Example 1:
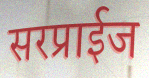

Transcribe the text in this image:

सरप्राईज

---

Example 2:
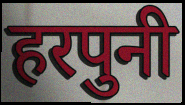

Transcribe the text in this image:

हरपुनी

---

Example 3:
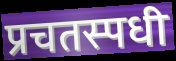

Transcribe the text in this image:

प्रचतस्पधी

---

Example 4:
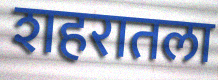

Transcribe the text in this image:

शहरातला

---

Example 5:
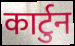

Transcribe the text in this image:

कार्टुन